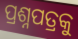
ପ୍ରଶ୍ନପତ୍ରକୁ